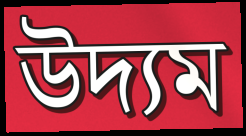
উদ্যম